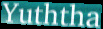
Yuththa